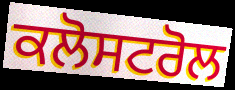
ਕਲੋਸਟਰੋਲ